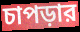
চাপড়ার